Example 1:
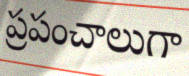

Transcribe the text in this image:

ప్రపంచాలుగా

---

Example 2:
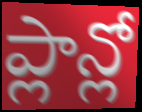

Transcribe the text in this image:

ప్లాన్లో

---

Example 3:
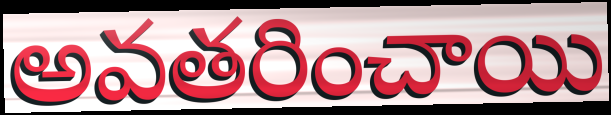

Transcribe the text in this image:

అవతరించాయి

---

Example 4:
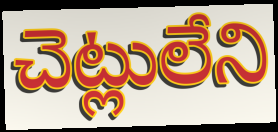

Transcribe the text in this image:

చెట్లులేని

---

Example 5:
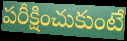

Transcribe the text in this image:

పరీక్షించుకుంటే